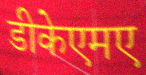
डीकेएमए